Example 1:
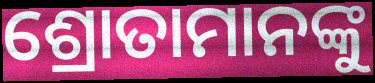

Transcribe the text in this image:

ଶ୍ରୋତାମାନଙ୍କୁ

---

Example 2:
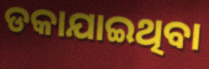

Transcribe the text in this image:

ଡକାଯାଇଥିବା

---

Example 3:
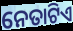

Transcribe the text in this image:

ନେତାଟିଏ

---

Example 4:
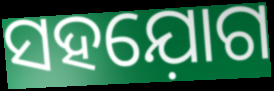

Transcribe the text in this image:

ସହଯ଼ୋଗ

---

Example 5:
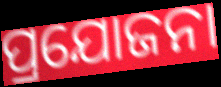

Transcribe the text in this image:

ପ୍ରଯୋଜନା